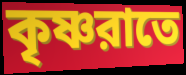
কৃষ্ণরাতে